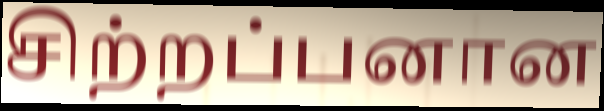
சிற்றப்பனான